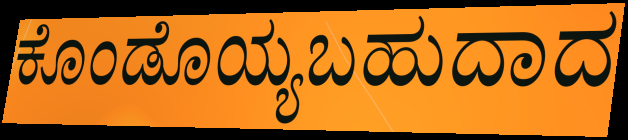
ಕೊಂಡೊಯ್ಯಬಹುದಾದ